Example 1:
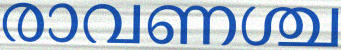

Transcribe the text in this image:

രാവണശ്ച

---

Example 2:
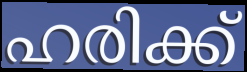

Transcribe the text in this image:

ഹരിക്ക്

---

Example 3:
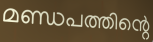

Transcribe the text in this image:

മണ്ഡപത്തിന്റെ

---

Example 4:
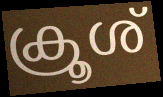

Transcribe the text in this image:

ക്രൂശ്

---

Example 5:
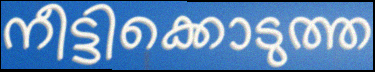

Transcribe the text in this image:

നീട്ടിക്കൊടുത്ത